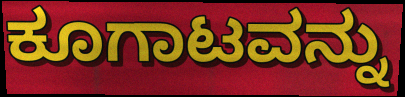
ಕೂಗಾಟವನ್ನು